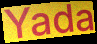
Yada